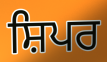
ਸ਼ਿਪਰ